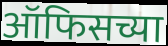
ऑफिसच्या